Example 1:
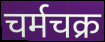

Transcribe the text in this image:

चर्मचक्र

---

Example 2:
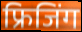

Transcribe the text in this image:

फ्रिजिंग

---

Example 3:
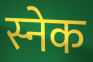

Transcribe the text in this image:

स्‍नेक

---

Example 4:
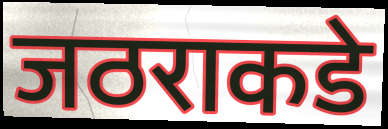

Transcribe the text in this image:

जठराकडे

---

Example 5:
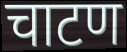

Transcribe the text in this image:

चाटण